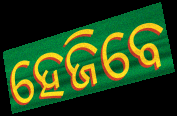
ହେଜିବେ